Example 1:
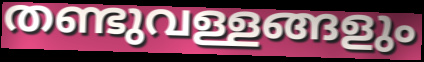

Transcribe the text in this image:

തണ്ടുവള്ളങ്ങളും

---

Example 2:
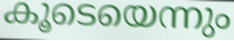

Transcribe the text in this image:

കൂടെയെന്നും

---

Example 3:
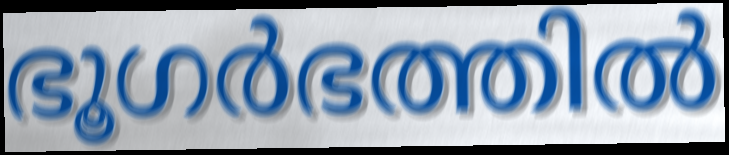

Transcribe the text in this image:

ഭൂഗർഭത്തിൽ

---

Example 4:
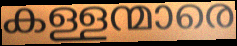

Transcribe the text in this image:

കള്ളന്മാരെ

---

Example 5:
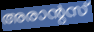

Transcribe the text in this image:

അരാന്റസ്